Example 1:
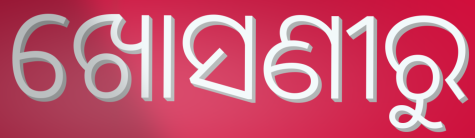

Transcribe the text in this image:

ଖୋସଣୀରୁ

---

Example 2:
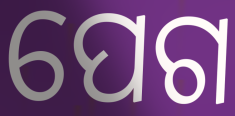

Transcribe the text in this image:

ପେଗ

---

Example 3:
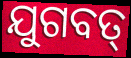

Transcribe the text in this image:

ଯୁଗବତ୍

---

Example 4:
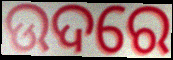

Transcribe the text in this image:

ଉଦରେ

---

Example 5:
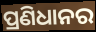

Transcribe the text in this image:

ପ୍ରଣିଧାନର